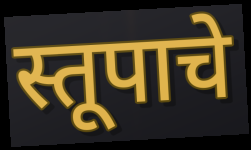
स्तूपाचे